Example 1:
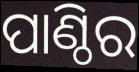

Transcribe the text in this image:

ପାଣ୍ଠିର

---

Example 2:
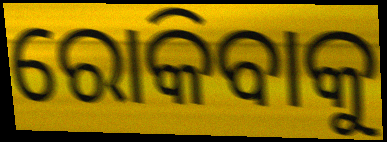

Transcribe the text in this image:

ରୋକିବାକୁ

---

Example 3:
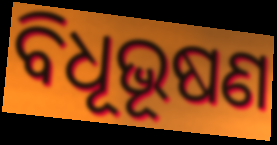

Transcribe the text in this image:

ବିଧୂଭୂଷଣ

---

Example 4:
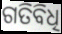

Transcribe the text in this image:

ଗତିବିଧି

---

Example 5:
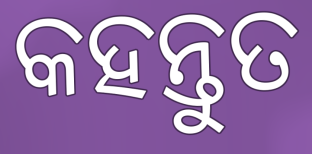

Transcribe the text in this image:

କହନ୍ତୁତ